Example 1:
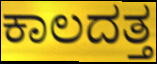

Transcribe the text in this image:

ಕಾಲದತ್ತ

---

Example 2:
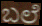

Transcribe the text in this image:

ಬಲೆ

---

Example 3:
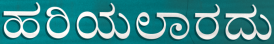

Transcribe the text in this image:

ಹರಿಯಲಾರದು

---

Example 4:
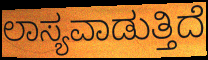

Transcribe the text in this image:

ಲಾಸ್ಯವಾಡುತ್ತಿದೆ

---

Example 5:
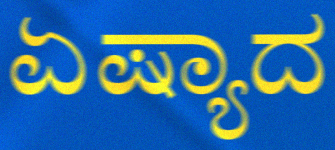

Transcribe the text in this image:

ಏಷ್ಯಾದ